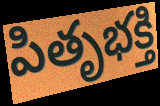
పితృభక్తి